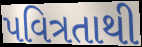
પવિત્રતાથી